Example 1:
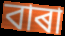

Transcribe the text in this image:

বাৰা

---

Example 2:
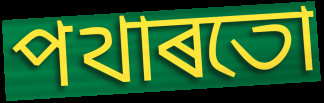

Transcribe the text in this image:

পথাৰতো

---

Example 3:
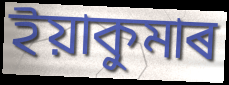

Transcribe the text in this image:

ইয়াকুমাৰ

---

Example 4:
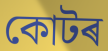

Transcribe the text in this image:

কোটৰ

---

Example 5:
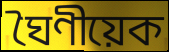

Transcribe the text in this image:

ঘৈণীয়েক